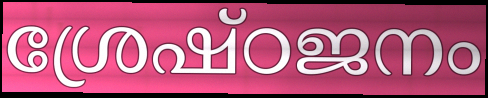
ശ്രേഷ്ഠജനം